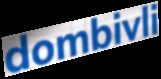
dombivli